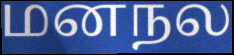
மனநல